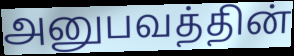
அனுபவத்தின்